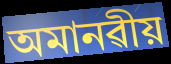
অমানৱীয়